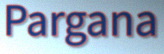
Pargana